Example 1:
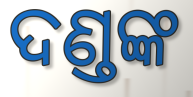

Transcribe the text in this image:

ଦଣ୍ଡଙ୍କ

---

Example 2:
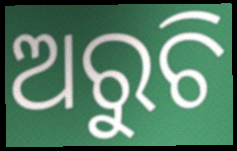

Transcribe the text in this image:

ଅରୁଚି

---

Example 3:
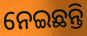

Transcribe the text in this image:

ନେଇଛନ୍ତି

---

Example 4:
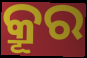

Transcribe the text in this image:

କ୍ରୂର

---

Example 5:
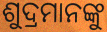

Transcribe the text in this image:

ଶୁଦ୍ରମାନଙ୍କୁ